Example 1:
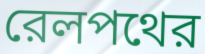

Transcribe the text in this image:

রেলপথের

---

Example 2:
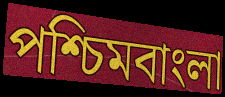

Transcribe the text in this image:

পশ্চিমবাংলা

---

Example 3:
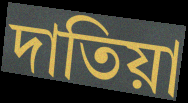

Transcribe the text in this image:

দাতিয়া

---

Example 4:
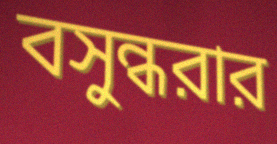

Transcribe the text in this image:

বসুন্ধরার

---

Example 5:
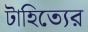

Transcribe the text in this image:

টাহিত্যের